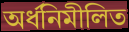
অর্ধনিমীলিত